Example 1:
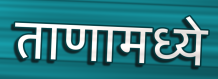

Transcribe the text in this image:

ताणामध्ये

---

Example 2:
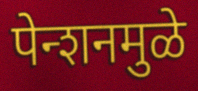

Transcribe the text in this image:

पेन्शनमुळे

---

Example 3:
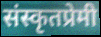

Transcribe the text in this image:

संस्कृतप्रेमी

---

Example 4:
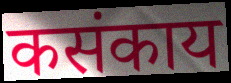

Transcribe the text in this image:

कसंकाय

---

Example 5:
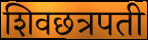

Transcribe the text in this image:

शिवछत्रपती